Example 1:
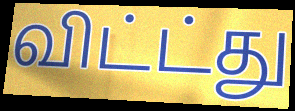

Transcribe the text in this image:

விட்ட்து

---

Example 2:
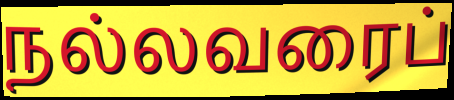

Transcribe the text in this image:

நல்லவரைப்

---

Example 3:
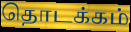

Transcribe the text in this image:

தொடக்கம்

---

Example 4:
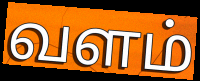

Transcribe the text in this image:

வளம்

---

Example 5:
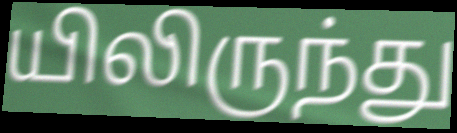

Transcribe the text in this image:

யிலிருந்து